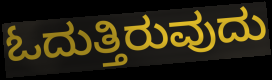
ಓದುತ್ತಿರುವುದು